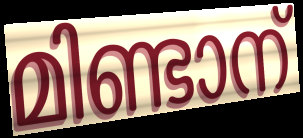
മിണ്ടാന്